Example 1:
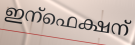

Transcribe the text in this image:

ഇന്ഫെക്ഷന്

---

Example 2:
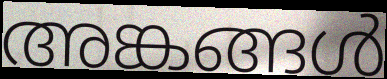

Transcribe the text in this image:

അങ്കങ്ങൾ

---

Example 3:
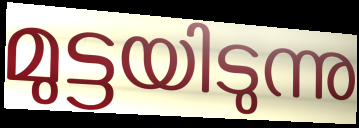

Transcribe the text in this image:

മുട്ടയിടുന്നു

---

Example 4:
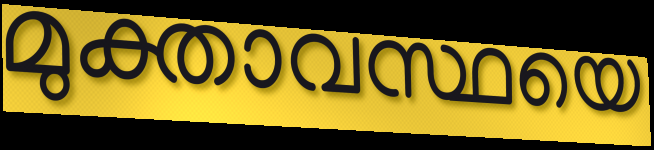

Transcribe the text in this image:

മുക്താവസ്ഥയെ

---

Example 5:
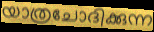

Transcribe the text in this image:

യാത്രചോദിക്കുന്ന